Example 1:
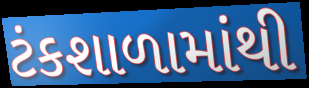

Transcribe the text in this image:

ટંકશાળામાંથી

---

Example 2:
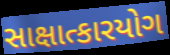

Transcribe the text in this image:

સાક્ષાત્કારયોગ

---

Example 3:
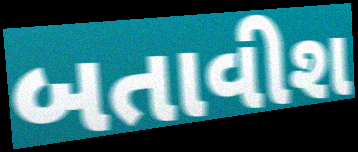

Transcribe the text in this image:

બતાવીશ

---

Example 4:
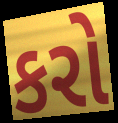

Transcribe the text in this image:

કરો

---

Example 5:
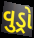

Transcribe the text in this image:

વુડ્રો